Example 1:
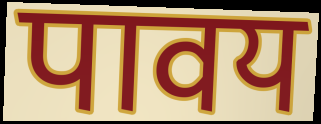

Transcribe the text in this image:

पावय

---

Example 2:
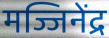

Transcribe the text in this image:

मज्जिनेंद्र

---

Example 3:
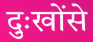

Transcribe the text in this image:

दुःखोंसे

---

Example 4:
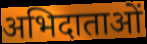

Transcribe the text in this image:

अभिदाताओं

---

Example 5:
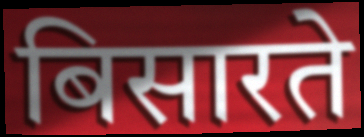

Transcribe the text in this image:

बिसारते